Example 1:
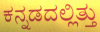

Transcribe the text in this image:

ಕನ್ನಡದಲ್ಲಿತ್ತು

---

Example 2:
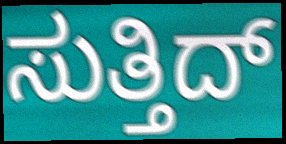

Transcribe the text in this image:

ಸುತ್ತಿದ್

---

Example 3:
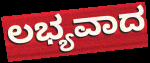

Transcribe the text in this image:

ಲಭ್ಯವಾದ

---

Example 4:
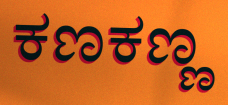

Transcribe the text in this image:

ಕಣಕಣ್ಣ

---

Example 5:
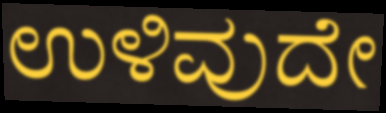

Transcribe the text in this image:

ಉಳಿವುದೇ